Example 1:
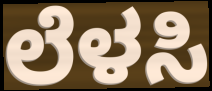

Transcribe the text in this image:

ಲೆಳಸಿ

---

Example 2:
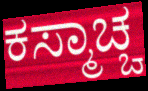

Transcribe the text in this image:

ಕಸ್ಮಾಚ್ಚ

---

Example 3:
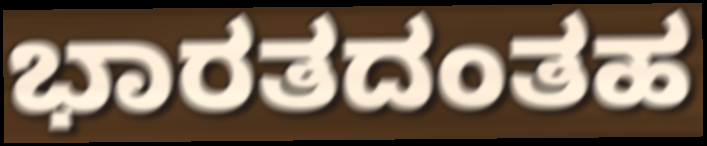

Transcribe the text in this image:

ಭಾರತದಂತಹ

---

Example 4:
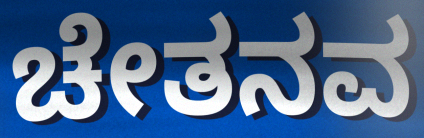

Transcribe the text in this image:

ಚೇತನವ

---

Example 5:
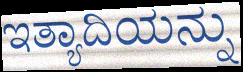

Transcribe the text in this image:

ಇತ್ಯಾದಿಯನ್ನು